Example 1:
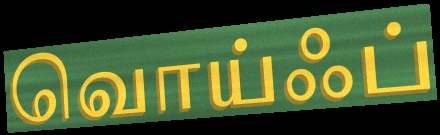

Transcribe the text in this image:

வொய்ஃப்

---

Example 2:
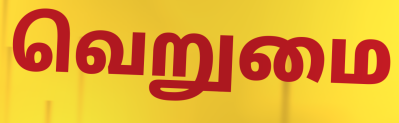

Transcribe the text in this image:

வெறுமை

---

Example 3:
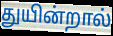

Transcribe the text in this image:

துயின்றால்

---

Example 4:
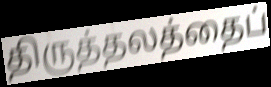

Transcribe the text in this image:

திருத்தலத்தைப்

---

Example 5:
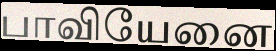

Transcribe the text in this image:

பாவியேனை